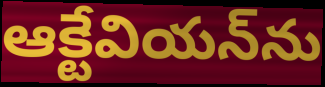
ఆక్టేవియన్‌ను